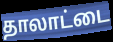
தாலாட்டை